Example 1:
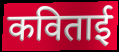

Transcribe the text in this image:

कविताई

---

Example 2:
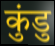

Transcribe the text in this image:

कुंडु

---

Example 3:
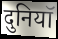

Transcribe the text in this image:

दुनियॉ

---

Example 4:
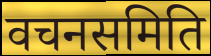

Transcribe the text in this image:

वचनसमिति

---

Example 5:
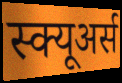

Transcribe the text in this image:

स्क्यूअर्स